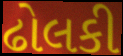
ઢોલકી